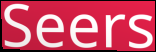
Seers